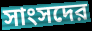
সাংসদের